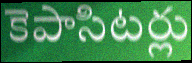
కెపాసిటర్లు